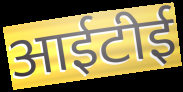
आईटीई